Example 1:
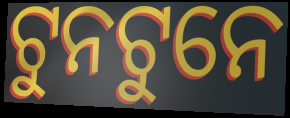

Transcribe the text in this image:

ଟୁନଟୁନେ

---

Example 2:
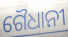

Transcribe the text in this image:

ଗୈଧାନୀ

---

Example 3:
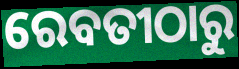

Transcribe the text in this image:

ରେବତୀଠାରୁ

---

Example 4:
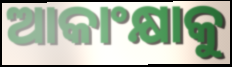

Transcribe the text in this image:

ଆକାଂକ୍ଷାକୁ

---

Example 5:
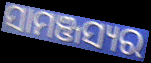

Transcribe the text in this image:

ସାମଞ୍ଜସ୍ୟର